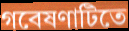
গবেষণাটিতে